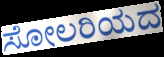
ಸೋಲರಿಯದ